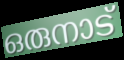
ഒരുനാട്